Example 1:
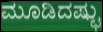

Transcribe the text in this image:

ಮೂಡಿದಷ್ಟು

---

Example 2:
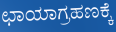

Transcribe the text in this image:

ಛಾಯಾಗ್ರಹಣಕ್ಕೆ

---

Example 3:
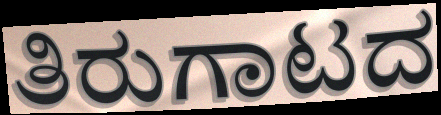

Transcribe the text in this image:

ತಿರುಗಾಟದ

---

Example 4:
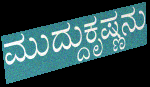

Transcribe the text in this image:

ಮುದ್ದುಕೃಷ್ಣನು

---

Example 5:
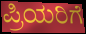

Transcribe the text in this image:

ಪ್ರಿಯರಿಗೆ